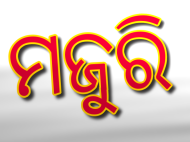
ମଜୁରି